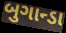
બુગાન્ડા